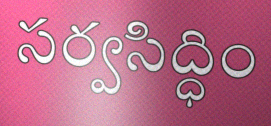
సర్వసిద్ధిం